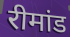
रीमांड